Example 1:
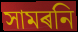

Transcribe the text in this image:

সামৰনি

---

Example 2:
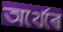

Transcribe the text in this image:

অৰ্থেৰে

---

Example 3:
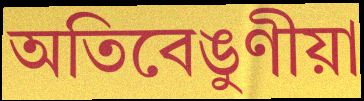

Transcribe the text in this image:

অতিবেঙুণীয়া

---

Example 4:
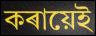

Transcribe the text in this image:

কৰায়েই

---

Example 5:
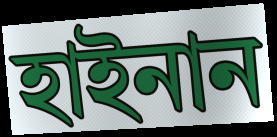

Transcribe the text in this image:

হাইনান